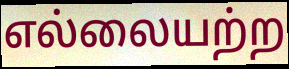
எல்லையற்ற